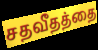
சதவீதத்தை